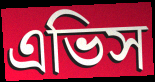
এভিস